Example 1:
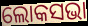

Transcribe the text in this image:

ଲୋକସଭା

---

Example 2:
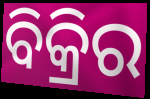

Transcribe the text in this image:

ବିକ୍ରିର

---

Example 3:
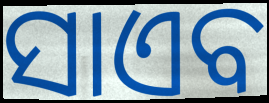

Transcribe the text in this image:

ସାଏବ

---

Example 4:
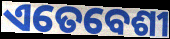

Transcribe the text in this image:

ଏତେବେଶୀ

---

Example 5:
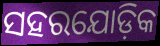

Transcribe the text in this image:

ସହରଯୋଡ଼ିକ